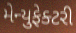
મેન્યુફેક્ટરી